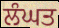
ਲੰਘਤ